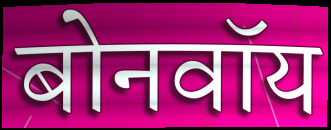
बोनवॉय